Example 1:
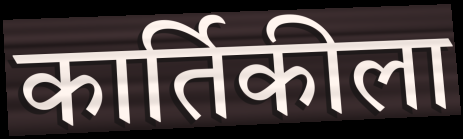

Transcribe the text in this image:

कार्तिकीला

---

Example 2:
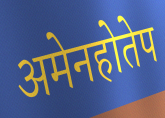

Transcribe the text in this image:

अमेनहोतेप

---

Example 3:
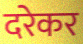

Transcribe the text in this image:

दरेकर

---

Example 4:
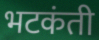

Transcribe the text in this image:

भटकंती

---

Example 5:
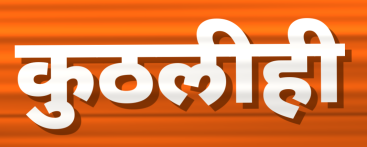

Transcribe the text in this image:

कुठलीही